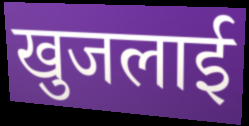
खुजलाई